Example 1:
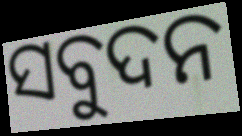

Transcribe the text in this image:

ସବୁଦନ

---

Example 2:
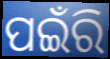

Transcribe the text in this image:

ପଇଁରି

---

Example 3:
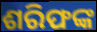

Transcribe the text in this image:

ଶରିଫଙ୍କ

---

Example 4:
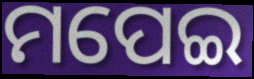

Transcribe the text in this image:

ମପେଇ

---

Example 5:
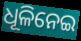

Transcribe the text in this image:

ଧୂଳିନେଇ